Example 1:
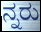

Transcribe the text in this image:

ನ್ನರು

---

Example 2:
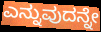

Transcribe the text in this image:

ಎನ್ನುವುದನ್ನೇ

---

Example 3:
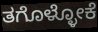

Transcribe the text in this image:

ತಗೊಳ್ಳೋಕೆ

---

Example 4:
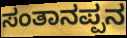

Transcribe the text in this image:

ಸಂತಾನಪ್ಪನ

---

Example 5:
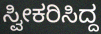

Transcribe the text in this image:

ಸ್ವೀಕರಿಸಿದ್ದ